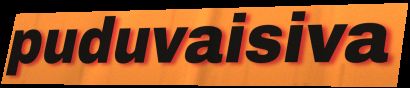
puduvaisiva